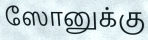
ஸோனுக்கு